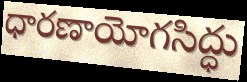
ధారణాయోగసిద్ధు